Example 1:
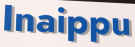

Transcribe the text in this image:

Inaippu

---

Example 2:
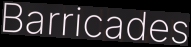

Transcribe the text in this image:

Barricades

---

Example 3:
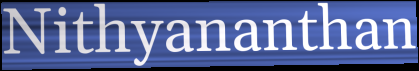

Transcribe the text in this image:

Nithyananthan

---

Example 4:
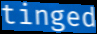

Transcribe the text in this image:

tinged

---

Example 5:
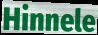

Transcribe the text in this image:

Hinnele